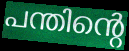
പന്തിന്റെ